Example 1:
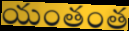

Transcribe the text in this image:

యంతంత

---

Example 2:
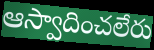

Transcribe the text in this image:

ఆస్వాదించలేరు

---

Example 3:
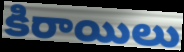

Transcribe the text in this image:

కిరాయిలు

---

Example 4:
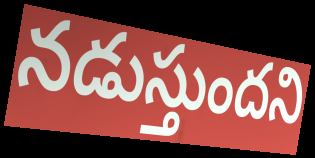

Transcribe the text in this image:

నడుస్తుందని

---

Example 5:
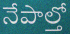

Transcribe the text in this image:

నేపాల్తో